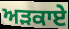
ਅੜਕਾਏ